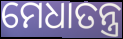
ମେଧାତନ୍ତ୍ର